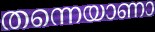
തന്നെയാണാ